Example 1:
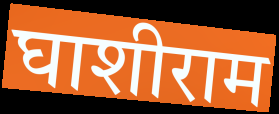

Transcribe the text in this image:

घाशीराम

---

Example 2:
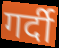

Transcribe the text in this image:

गर्दी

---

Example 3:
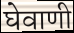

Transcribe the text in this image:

घेवाणी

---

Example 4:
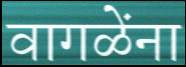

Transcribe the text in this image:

वागळेंना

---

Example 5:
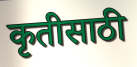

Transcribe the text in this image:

कृतीसाठी